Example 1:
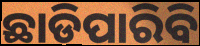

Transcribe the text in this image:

ଛାଡିପାରିବି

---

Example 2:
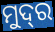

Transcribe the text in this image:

ମୁଦ୍‌ର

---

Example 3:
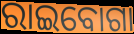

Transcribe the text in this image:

ରାଇବୋଗା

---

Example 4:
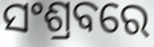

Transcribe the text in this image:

ସଂଶ୍ରବରେ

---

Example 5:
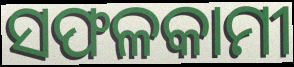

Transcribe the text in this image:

ସଫଳକାମୀ